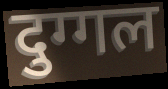
दुग्गल